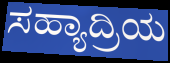
ಸಹ್ಯಾದ್ರಿಯ